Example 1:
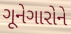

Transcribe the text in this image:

ગૂનેગારોને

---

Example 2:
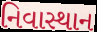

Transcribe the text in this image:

નિવાસ્થાન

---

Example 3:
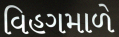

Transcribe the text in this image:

વિહગમાળે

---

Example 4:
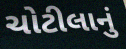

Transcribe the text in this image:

ચોટીલાનું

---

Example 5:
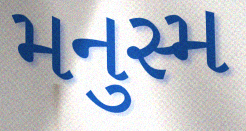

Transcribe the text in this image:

મનુસ્મ